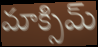
మాక్సిమ్